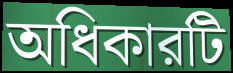
অধিকারটি